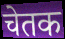
चेतक